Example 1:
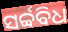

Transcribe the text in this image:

ସର୍ବ୍ବବିଧ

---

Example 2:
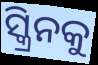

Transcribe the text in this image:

ସ୍କ୍ରିନକୁ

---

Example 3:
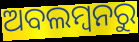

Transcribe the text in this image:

ଅବଲମ୍ବନରୁ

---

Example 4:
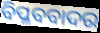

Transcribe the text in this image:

ବିପ୍ଳବବାଦର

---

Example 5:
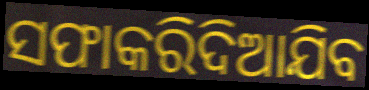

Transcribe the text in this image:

ସଫାକରିଦିଆଯିବ